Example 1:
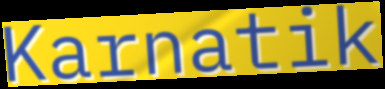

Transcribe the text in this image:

Karnatik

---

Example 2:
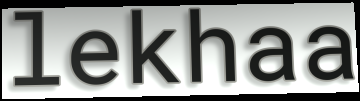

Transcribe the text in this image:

lekhaa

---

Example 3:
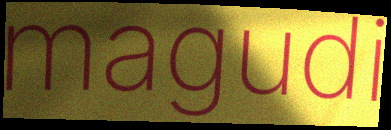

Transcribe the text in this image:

magudi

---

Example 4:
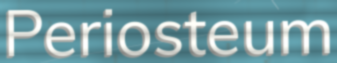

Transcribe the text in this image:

Periosteum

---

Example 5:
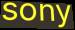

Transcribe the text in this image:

sony